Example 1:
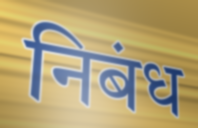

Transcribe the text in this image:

निबंध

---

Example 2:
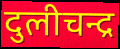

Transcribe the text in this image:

दुलीचन्द्र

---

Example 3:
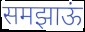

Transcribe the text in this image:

समझाऊं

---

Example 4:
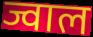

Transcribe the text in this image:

ज्वाल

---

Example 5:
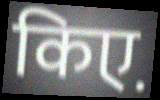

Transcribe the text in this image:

किए़